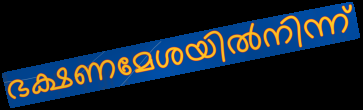
ഭക്ഷണമേശയിൽനിന്ന്